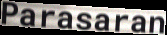
Parasaran